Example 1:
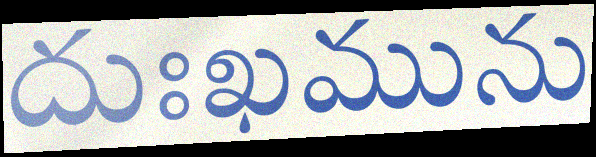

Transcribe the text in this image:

దుఃఖమును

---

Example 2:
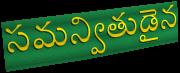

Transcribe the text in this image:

సమన్వితుడైన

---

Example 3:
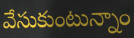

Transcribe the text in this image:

వేసుకుంటున్నాం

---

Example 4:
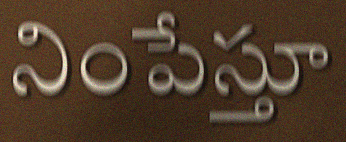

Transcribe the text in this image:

నింపేస్తూ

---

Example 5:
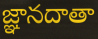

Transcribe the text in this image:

జ్ఞానదాతా